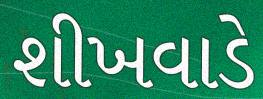
શીખવાડે